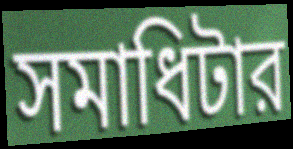
সমাধিটার